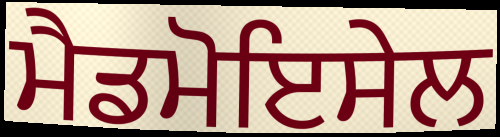
ਮੈਡਮੋਇਸੇਲ